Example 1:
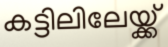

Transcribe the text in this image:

കട്ടിലിലേയ്ക്ക്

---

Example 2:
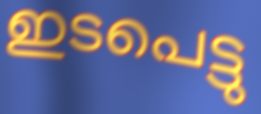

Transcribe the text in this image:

ഇടപെട്ടു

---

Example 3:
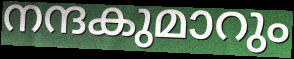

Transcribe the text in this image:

നന്ദകുമാറും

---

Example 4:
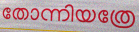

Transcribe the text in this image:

തോന്നിയത്രേ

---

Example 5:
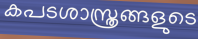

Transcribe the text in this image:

കപടശാസ്ത്രങ്ങളുടെ